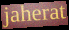
jaherat